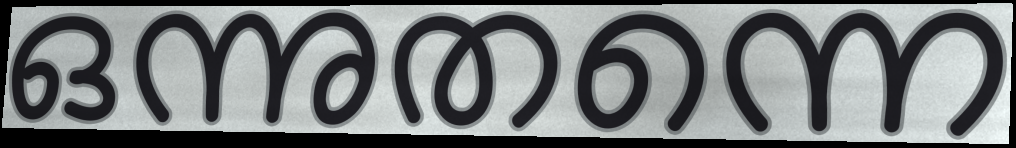
ഒന്നുതന്നെ